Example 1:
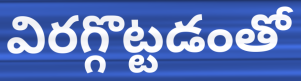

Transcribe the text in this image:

విరగ్గొట్టడంతో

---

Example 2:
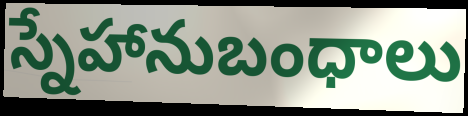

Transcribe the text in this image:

స్నేహానుబంధాలు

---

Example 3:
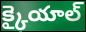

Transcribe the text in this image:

క్కైయాల్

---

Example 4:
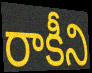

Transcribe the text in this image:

రాకీని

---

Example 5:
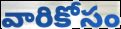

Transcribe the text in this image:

వారికోసం